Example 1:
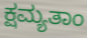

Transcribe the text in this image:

ಕ್ಷಮ್ಯತಾಂ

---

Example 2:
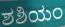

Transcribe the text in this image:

ಶಶಿಯಂ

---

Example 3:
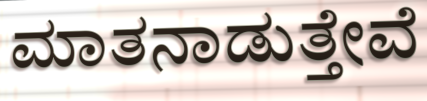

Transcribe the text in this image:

ಮಾತನಾಡುತ್ತೇವೆ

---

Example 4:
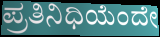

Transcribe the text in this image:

ಪ್ರತಿನಿಧಿಯೆಂದೇ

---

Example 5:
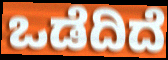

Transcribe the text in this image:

ಒಡೆದಿದೆ